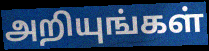
அறியுங்கள்